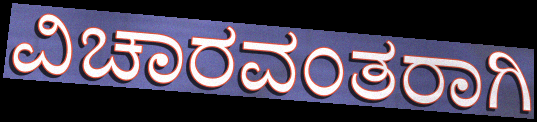
ವಿಚಾರವಂತರಾಗಿ